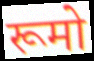
रूमो